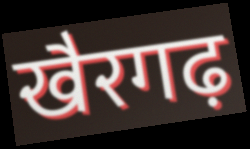
खैरगढ़